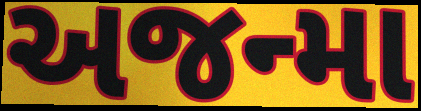
અજન્મા